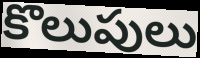
కొలుపులు